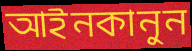
আইনকানুন